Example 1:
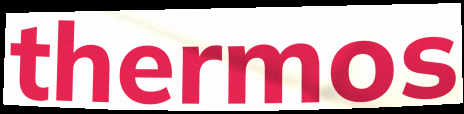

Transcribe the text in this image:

thermos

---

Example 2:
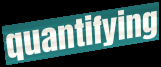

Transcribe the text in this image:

quantifying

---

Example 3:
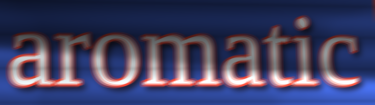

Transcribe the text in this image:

aromatic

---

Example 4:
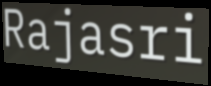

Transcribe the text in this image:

Rajasri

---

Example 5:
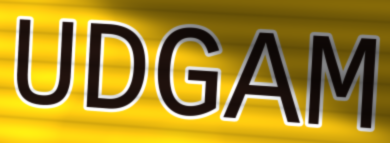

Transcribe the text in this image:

UDGAM